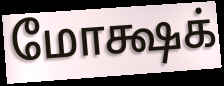
மோக்ஷக்